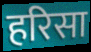
हरिसा